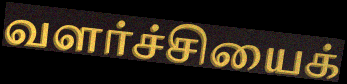
வளர்ச்சியைக்